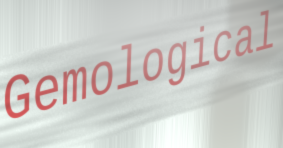
Gemological